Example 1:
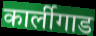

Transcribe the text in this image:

कार्लीगाड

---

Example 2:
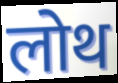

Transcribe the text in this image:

लोथ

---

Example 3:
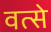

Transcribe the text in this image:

वत्से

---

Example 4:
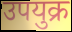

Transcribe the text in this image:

उपयुक्र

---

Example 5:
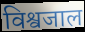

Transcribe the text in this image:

विश्वजाल